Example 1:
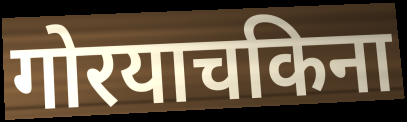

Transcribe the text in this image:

गोरयाचकिना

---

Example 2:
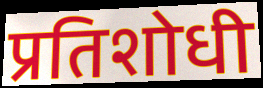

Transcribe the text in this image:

प्रतिशोधी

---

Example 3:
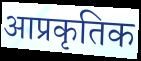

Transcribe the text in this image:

आप्रकृतिक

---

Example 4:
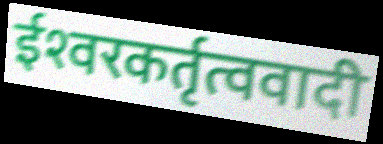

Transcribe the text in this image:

ईश्वरकर्तृत्ववादी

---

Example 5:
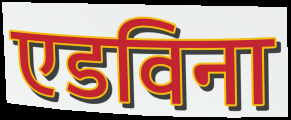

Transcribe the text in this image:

एडविना